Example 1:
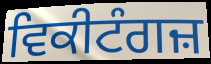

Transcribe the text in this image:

ਵਿਕੀਟੰਗਜ਼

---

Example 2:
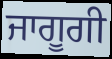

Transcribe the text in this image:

ਜਾਗੂਗੀ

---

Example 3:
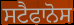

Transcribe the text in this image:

ਸਟੈਫਾਨੋਸ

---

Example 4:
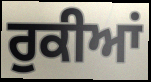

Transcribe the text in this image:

ਰੁਕੀਆਂ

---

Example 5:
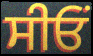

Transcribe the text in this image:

ਸੀਓਂ